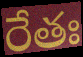
రేతః